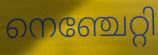
നെഞ്ചേറ്റി